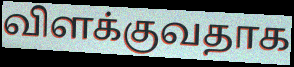
விளக்குவதாக